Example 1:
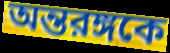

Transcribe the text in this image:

অন্তরঙ্গকে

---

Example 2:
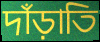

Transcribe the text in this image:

দাঁড়াতি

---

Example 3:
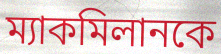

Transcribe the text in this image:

ম্যাকমিলানকে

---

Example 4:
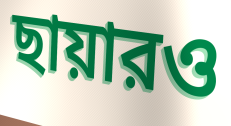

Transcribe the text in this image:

ছায়ারও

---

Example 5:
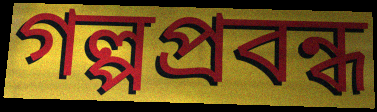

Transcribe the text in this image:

গল্পপ্রবন্ধ